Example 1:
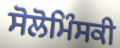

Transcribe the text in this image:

ਸੋਲੋਮਿੰਸਕੀ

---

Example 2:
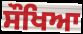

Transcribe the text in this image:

ਸੌਖਿਆ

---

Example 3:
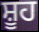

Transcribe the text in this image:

ਸ਼ੂਹ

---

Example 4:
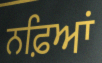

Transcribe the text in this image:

ਨਫ਼ਿਆਂ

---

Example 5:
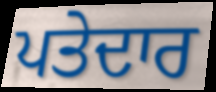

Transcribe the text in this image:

ਪਤੇਦਾਰ